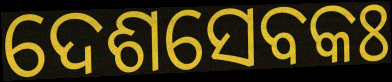
ଦେଶସେବକଃ